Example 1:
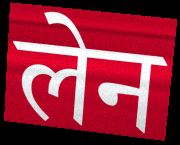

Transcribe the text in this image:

लेन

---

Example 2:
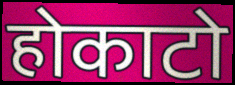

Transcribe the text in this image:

होकाटो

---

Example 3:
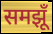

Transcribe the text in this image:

समझूँ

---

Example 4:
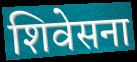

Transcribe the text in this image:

शिवेसना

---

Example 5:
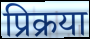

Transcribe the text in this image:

प्रिक्रया